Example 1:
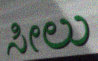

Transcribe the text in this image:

ಸೀಲು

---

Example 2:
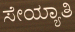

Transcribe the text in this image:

ಸೇಯ್ಯಾತಿ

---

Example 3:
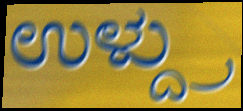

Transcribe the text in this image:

ಉಳ್ದ್ರು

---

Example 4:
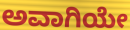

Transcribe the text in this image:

ಅವಾಗಿಯೇ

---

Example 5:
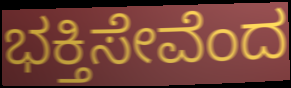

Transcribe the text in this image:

ಭಕ್ತಿಸೇವೆಂದ